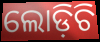
ଲୋଡ଼ିଚି